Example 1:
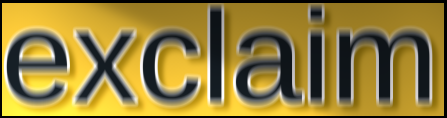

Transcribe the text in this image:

exclaim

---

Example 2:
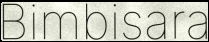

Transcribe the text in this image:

Bimbisara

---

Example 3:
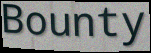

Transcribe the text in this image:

Bounty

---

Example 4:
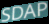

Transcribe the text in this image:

SDAP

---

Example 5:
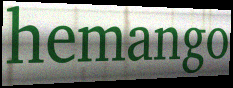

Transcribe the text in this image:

hemango